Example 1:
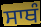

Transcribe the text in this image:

ਸਾਥੰ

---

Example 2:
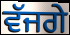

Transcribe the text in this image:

ਵੱਜਗੇ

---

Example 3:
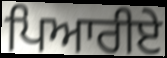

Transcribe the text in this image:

ਪਿਆਰੀਏ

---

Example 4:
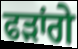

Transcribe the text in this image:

ਫੜਾਂਗੇ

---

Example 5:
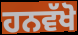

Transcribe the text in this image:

ਹਨਵੱਖੋ